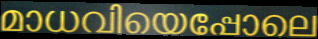
മാധവിയെപ്പോലെ